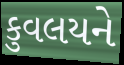
કુવલયને